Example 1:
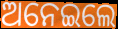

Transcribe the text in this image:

ଅନେଇଲେ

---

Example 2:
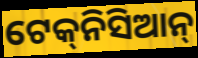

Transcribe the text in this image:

ଟେକ୍‌ନିସିଆନ୍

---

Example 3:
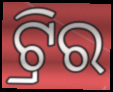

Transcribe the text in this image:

ଟ୍ରିର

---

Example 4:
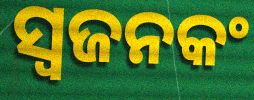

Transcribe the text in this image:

ସ୍ଵଜନକଂ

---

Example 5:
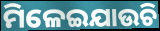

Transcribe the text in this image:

ମିଳେଇଯାଉଚି